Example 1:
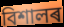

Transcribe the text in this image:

বিশালৰ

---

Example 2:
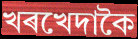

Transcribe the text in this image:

খৰখেদাকৈ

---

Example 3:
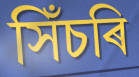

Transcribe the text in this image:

সিঁচৰি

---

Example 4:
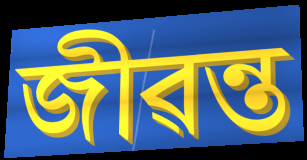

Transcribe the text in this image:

জীৱন্ত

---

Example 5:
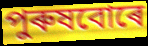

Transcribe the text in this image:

পুৰুষবোৰে